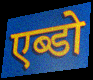
एब्डो